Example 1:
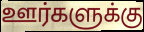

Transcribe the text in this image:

ஊர்களுக்கு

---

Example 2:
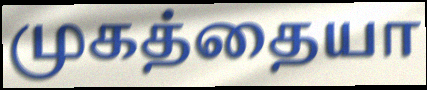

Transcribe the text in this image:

முகத்தையா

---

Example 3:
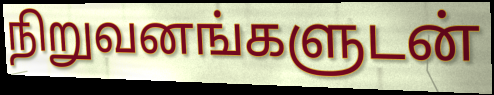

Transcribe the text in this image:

நிறுவனங்களுடன்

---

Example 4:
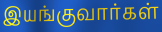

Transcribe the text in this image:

இயங்குவார்கள்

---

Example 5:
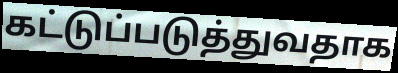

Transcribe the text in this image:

கட்டுப்படுத்துவதாக